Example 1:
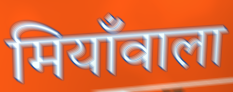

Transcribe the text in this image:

मियाँवाला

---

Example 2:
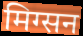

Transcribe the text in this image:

मिग्सन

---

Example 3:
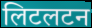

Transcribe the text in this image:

लिटलटन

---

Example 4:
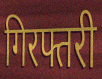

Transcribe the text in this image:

गिरफ्तरी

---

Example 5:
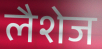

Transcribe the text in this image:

लैशेज